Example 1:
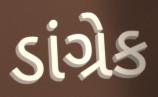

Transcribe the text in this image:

ડાંગ્રેક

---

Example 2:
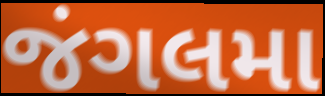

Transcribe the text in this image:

જંગલમા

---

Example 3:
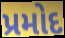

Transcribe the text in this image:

પ્રમોદ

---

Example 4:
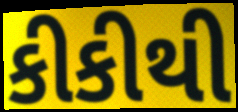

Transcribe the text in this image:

કીકીથી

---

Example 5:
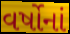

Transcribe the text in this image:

વર્ષોનાં